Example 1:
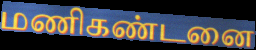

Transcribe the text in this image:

மணிகண்டனை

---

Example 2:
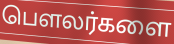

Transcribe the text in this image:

பௌலர்களை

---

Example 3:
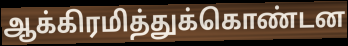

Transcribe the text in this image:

ஆக்கிரமித்துக்கொண்டன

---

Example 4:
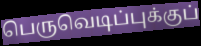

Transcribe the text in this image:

பெருவெடிப்புக்குப்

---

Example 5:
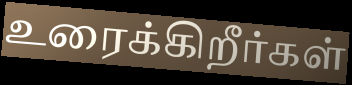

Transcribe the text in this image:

உரைக்கிறீர்கள்